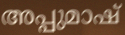
അപ്പുമാഷ്